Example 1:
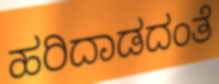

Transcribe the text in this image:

ಹರಿದಾಡದಂತೆ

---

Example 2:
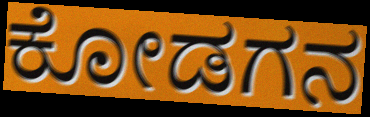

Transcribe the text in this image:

ಕೋಡಗನ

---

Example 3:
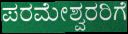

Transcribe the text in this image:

ಪರಮೇಶ್ವರರಿಗೆ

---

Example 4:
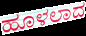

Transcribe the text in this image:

ಹೂಳಲಾದ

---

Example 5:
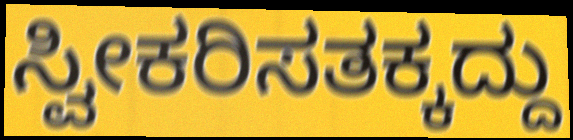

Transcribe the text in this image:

ಸ್ವೀಕರಿಸತಕ್ಕದ್ದು